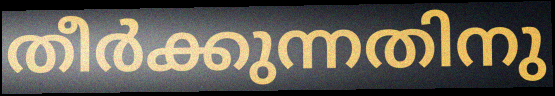
തീർക്കുന്നതിനു